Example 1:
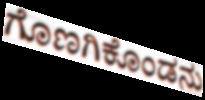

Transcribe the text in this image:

ಗೊಣಗಿಕೊಂಡನು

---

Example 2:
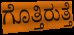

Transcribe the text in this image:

ಗೊತ್ತಿರುತ್ತೆ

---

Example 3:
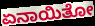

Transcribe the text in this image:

ಏನಾಯಿತೋ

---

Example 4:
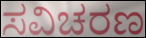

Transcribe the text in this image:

ಸವಿಚರಣ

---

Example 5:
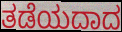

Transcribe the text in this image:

ತಡೆಯದಾದ